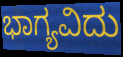
ಭಾಗ್ಯವಿದು